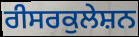
ਰੀਸਰਕੁਲੇਸ਼ਨ